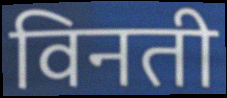
विनती